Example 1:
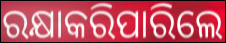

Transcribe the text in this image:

ରକ୍ଷାକରିପାରିଲେ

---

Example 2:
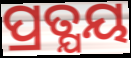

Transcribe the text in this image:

ପ୍ରତ୍ଯୟ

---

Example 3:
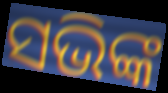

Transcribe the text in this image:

ସଭିଙ୍କ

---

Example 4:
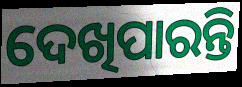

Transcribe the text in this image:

ଦେଖିପାରନ୍ତି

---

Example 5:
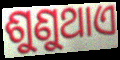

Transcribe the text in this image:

ଶୁଣୁଥାଏ